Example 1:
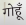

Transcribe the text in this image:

गोहूँ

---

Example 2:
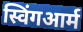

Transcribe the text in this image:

स्विंगआर्म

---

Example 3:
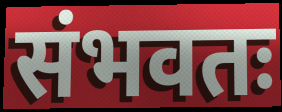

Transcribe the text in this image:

संभवतः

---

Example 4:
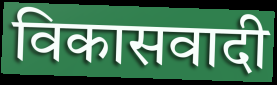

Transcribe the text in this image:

विकासवादी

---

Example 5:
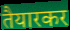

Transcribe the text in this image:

तैयारकर